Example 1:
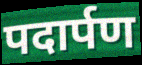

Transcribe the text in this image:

पदार्पण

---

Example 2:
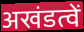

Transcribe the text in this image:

अखंडत्वें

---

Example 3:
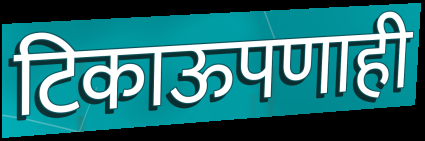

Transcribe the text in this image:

टिकाऊपणाही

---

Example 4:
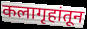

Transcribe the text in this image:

कलागृहांतून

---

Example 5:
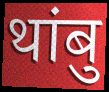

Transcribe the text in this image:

थांबु